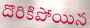
దొరికిపోయిన